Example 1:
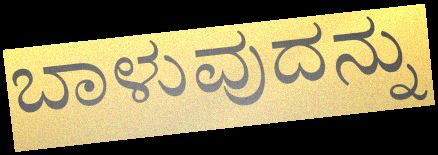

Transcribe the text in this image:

ಬಾಳುವುದನ್ನು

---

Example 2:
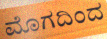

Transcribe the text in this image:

ಮೊಗದಿಂದ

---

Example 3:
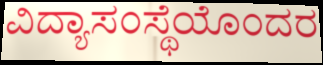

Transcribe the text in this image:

ವಿದ್ಯಾಸಂಸ್ಥೆಯೊಂದರ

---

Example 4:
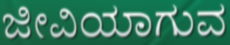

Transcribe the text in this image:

ಜೀವಿಯಾಗುವ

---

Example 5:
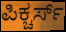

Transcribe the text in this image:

ಪಿಕ್ಚರ್ಸ್